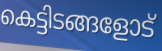
കെട്ടിടങ്ങളോട്